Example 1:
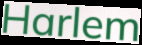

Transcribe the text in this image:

Harlem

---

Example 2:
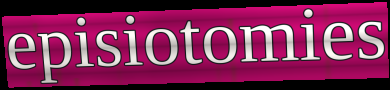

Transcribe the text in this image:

episiotomies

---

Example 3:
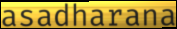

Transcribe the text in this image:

asadharana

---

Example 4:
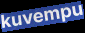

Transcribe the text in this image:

kuvempu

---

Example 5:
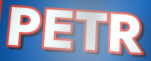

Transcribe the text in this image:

PETR